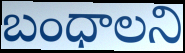
బంధాలని